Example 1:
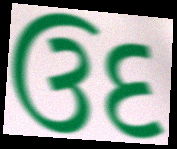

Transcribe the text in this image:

ઉદ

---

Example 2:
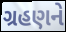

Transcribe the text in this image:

ગ્રહણને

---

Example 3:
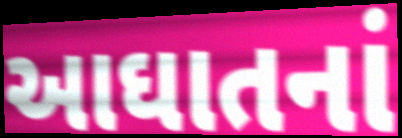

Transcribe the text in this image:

આઘાતનાં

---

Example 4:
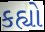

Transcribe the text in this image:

કહ્યો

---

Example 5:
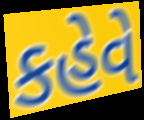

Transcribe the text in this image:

કહેવે